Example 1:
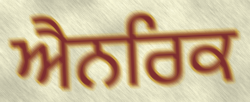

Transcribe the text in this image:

ਐਨਰਿਕ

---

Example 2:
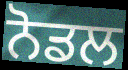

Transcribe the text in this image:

ਨੋਡਲ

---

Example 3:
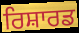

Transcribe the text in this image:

ਰਿਸ਼ਾਰਡ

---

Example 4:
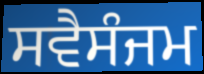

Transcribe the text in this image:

ਸਵੈਸੰਜਮ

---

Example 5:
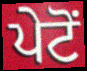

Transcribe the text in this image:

ਪੇਟੋਂ